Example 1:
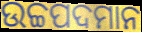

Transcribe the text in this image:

ଉଚ୍ଚପଦମାନ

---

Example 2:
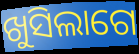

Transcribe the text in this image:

ଖୁସିଲାଗେ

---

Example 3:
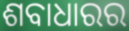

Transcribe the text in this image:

ଶବାଧାରର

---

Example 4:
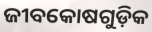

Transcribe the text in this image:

ଜୀବକୋଷଗୁଡ଼ିକ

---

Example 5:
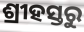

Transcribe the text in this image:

ଶ୍ରୀହସ୍ତରୁ